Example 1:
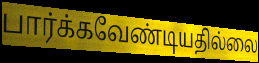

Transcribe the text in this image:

பார்க்கவேண்டியதில்லை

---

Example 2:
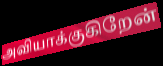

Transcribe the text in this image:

அவியாக்குகிறேன்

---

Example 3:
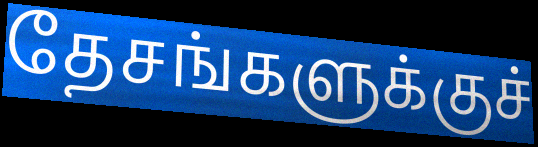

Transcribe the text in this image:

தேசங்களுக்குச்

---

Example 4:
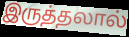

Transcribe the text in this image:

இருத்தலால்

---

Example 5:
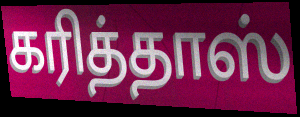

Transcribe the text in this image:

கரித்தாஸ்